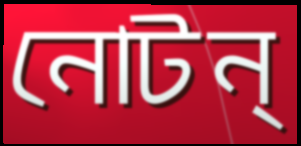
নোটন্